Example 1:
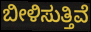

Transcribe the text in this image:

ಬೀಳಿಸುತ್ತಿವೆ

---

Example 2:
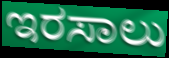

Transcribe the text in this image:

ಇರಸಾಲು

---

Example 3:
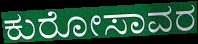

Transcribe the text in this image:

ಕುರೋಸಾವರ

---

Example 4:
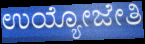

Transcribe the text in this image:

ಉಯ್ಯೋಜೇತಿ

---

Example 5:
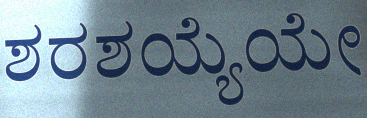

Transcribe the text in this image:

ಶರಶಯ್ಯೆಯೇ